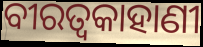
ବୀରତ୍ୱକାହାଣୀ